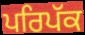
ਪਰਿਪੱਕ